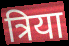
त्रिया